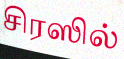
சிரஸில்